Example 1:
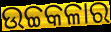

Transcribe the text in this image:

ଉଚ୍ଚକଳାର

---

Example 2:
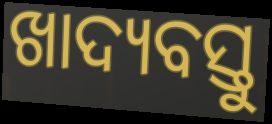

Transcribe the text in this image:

ଖାଦ୍ୟବସ୍ତୁ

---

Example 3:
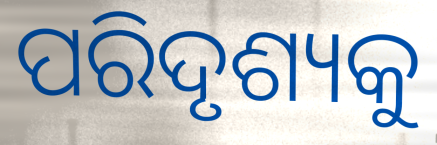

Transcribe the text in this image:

ପରିଦୃଶ୍ୟକୁ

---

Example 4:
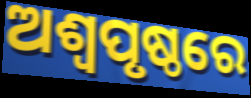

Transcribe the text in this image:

ଅଶ୍ଵପୃଷ୍ଠରେ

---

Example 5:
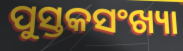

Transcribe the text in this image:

ପୁସ୍ତକସଂଖ୍ୟା